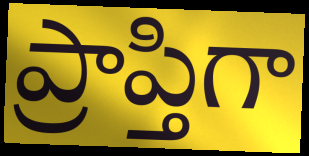
ప్రాప్తిగా